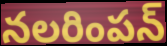
నలరింపన్